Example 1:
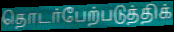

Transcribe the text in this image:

தொடர்பேற்படுத்திக்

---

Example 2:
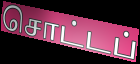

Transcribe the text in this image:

சொட்டப்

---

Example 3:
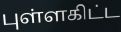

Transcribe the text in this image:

புள்ளகிட்ட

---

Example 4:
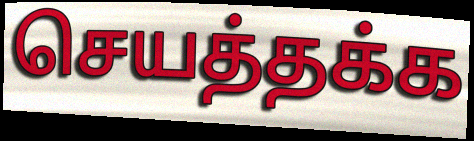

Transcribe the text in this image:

செயத்தக்க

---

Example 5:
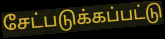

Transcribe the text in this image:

சேட்படுக்கப்பட்டு